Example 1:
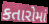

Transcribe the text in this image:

કતારોમાં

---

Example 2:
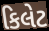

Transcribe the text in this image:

કિલેટ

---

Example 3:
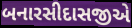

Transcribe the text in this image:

બનારસીદાસજીએ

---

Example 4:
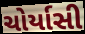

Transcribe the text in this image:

ચોર્યાસી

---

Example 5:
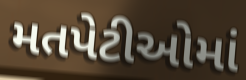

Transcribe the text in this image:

મતપેટીઓમાં